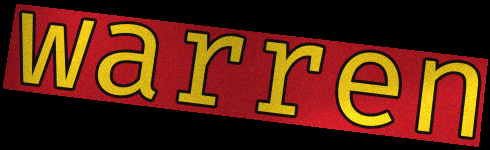
warren